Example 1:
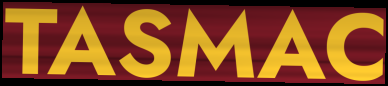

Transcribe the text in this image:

TASMAC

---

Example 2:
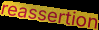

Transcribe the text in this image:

reassertion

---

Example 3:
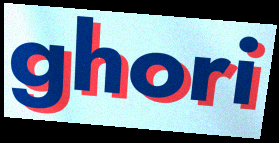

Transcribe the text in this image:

ghori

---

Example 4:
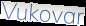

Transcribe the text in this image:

Vukovar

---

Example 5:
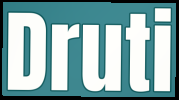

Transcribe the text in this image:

Druti